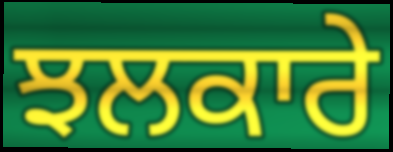
ਝਲਕਾਰੇ